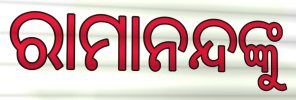
ରାମାନନ୍ଦଙ୍କୁ